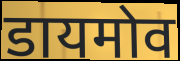
डायमोव